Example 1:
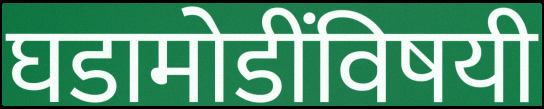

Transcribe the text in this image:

घडामोडींविषयी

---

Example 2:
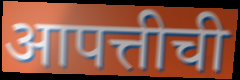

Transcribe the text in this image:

आपत्तीची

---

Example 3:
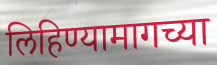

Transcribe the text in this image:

लिहिण्यामागच्या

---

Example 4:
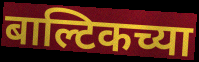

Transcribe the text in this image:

बाल्टिकच्या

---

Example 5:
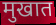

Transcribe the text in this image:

मुखात